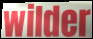
wilder